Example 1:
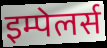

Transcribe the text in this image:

इम्पेलर्स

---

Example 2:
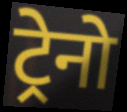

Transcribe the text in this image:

ट्रेनो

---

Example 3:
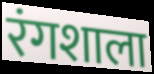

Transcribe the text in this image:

रंगशाला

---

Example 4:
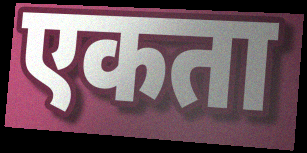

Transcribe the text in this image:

एकता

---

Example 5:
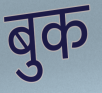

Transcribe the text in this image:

बुक